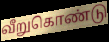
வீறுகொண்டு